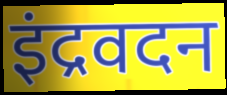
इंद्रवदन